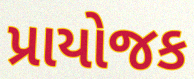
પ્રાયોજક